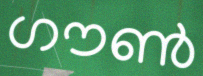
ഗൗൺ